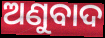
ଅଣୁବାଦ